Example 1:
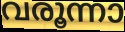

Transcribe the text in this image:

വരൂന്നാ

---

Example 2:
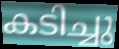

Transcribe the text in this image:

കടിച്ചു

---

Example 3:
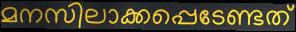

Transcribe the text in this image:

മനസിലാക്കപ്പെടേണ്ടത്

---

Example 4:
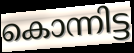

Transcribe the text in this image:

കൊന്നിട്ട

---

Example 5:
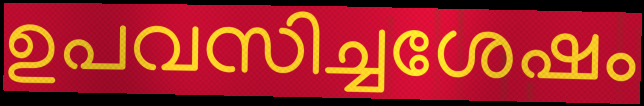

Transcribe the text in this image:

ഉപവസിച്ചശേഷം